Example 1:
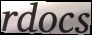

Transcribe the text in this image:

rdocs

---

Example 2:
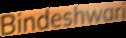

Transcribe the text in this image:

Bindeshwari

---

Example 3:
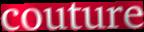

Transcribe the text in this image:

couture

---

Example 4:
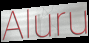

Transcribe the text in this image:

Aluru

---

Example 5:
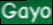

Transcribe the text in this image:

Gayo